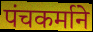
पंचकर्माने